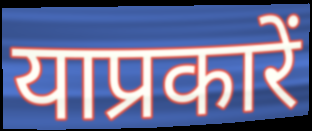
याप्रकारें